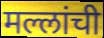
मल्लांची